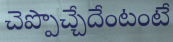
చెప్పొచ్చేదేంటంటే